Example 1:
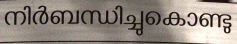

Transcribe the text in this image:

നിർബന്ധിച്ചുകൊണ്ടു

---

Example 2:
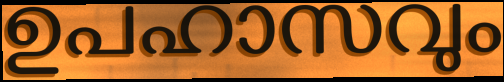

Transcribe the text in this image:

ഉപഹാസവും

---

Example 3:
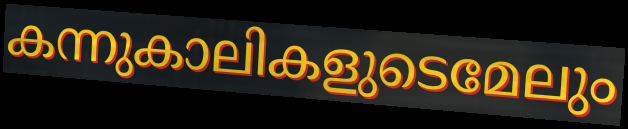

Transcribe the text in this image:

കന്നുകാലികളുടെമേലും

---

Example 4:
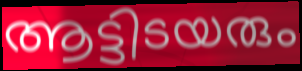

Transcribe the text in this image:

ആട്ടിടയരും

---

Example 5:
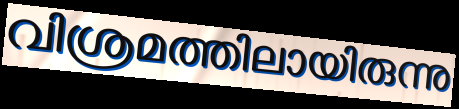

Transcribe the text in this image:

വിശ്രമത്തിലായിരുന്നു